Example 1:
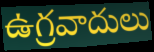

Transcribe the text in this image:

ఉగ్రవాదులు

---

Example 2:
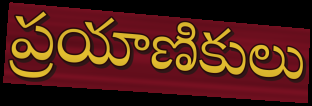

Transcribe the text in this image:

ప్రయాణికులు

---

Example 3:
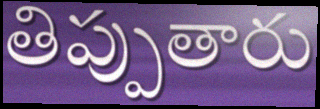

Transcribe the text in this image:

తిప్పుతారు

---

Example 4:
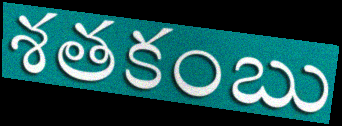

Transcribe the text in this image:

శతకంబు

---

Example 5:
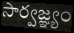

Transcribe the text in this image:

సార్వజ్ఞ్యం